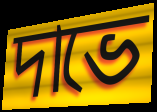
দাভে